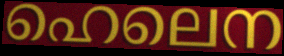
ഹെലെന